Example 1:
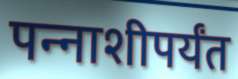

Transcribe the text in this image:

पन्नाशीपर्यंत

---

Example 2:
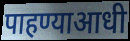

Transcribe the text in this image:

पाहण्याआधी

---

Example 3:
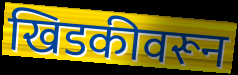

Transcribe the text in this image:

खिडकीवरून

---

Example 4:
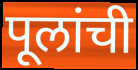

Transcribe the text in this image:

पूलांची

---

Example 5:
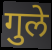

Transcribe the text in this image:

गुले